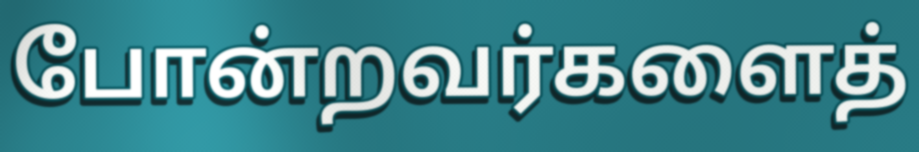
போன்றவர்களைத்